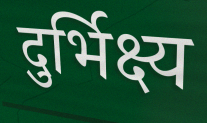
दुर्भिक्ष्य